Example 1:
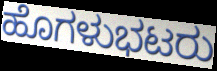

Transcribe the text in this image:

ಹೊಗಳುಭಟರು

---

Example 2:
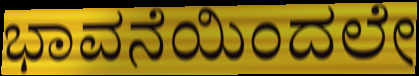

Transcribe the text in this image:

ಭಾವನೆಯಿಂದಲೇ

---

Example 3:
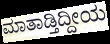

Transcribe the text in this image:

ಮಾತಾಡ್ತಿದ್ದೀಯ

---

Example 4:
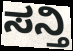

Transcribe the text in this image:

ಸನ್ತಿ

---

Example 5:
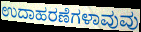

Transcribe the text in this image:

ಉದಾಹರಣೆಗಳಾವುವು